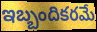
ఇబ్బందికరమే